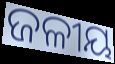
ଜଳୀୟ